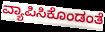
ವ್ಯಾಪಿಸಿಕೊಂಡಂತೆ